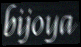
bijoya